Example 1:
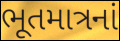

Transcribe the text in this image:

ભૂતમાત્રનાં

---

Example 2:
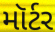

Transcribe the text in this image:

મૉર્ટર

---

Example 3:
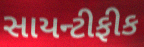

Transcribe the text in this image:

સાયન્ટીફીક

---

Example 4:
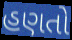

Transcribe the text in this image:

હણતો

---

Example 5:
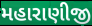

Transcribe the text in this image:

મહારાણીજી